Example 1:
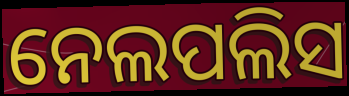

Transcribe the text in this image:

ନେଲପଲିସ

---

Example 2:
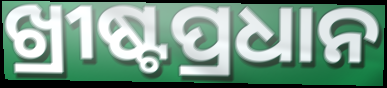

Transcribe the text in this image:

ଖ୍ରୀଷ୍ଟପ୍ରଧାନ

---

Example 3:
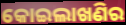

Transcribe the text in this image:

କୋଇଲାଖଣିର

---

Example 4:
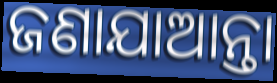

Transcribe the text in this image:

ଜଣାଯାଆନ୍ତା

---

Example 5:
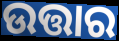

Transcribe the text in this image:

ଉତ୍ତାର